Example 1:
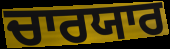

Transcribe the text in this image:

ਚਾਰਯਾਰ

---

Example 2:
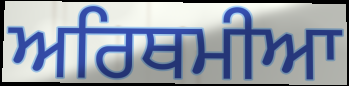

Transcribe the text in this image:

ਅਰਿਥਮੀਆ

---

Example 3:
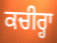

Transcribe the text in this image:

ਕਚੀਰ੍ਹਾ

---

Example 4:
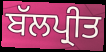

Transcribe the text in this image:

ਬੱਲਪ੍ਰੀਤ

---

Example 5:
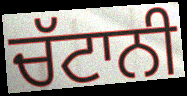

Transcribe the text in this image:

ਚੱਟਾਨੀ